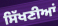
ਸਿੱਖਣੀਆਂ